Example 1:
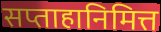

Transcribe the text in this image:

सप्ताहानिमित्त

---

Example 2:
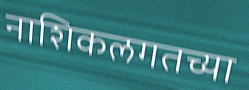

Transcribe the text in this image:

नाशिकलगतच्या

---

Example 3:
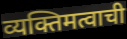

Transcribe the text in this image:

व्यक्तिमत्वाची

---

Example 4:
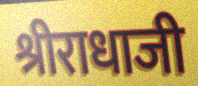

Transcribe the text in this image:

श्रीराधाजी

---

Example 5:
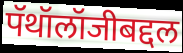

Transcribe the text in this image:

पॅथॉलॉजीबद्दल